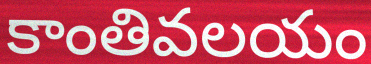
కాంతివలయం